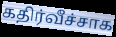
கதிர்வீச்சாக